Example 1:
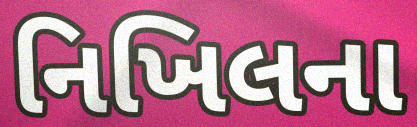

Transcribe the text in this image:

નિખિલના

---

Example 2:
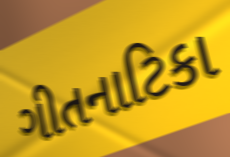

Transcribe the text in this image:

ગીતનાટિકા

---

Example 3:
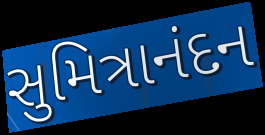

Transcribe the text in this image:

સુમિત્રાનંદન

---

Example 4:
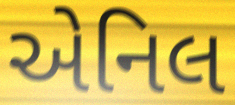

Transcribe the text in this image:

એનિલ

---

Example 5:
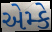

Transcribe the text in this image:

એમ્કે